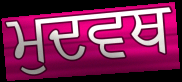
ਮੁਦਵਥ